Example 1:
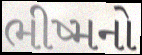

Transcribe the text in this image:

ભીષ્મનો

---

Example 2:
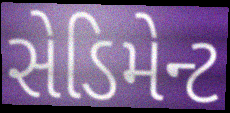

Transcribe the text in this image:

સેડિમેન્ટ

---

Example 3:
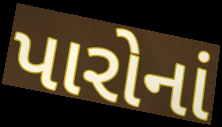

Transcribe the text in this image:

પારોનાં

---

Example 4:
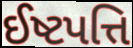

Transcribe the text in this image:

ઈષ્ટપત્તિ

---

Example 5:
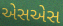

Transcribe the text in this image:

એસએસ